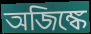
অজিঙ্কে